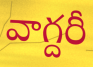
వాగ్దరీ